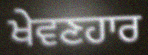
ਖੇਵਣਹਾਰ